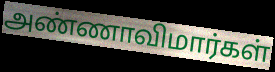
அண்ணாவிமார்கள்